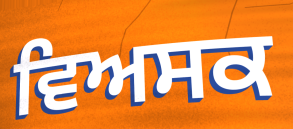
ਵਿਅਸਕ